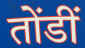
तोंडीं